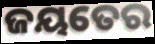
ଜୟତେର